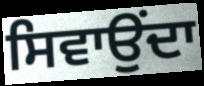
ਸਿਵਾਉਂਦਾ